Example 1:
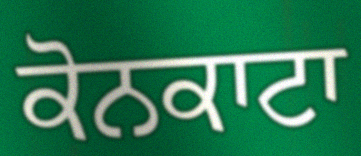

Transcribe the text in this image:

ਕੋਨਕਾਟਾ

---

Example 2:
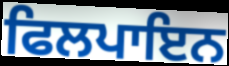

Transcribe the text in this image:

ਫਿਲਪਾਇਨ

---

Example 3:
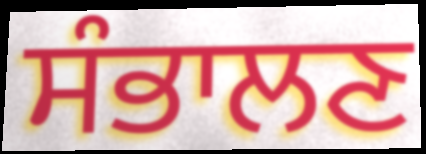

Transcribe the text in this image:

ਸੰਭਾਲਣ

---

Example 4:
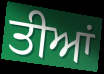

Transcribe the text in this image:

ਤੀਆਂ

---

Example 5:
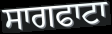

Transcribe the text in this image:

ਸਾਗਫਾਟਾ